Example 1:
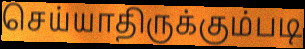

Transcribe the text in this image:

செய்யாதிருக்கும்படி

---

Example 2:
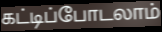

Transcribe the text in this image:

கட்டிப்போடலாம்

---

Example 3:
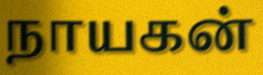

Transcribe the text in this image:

நாயகன்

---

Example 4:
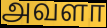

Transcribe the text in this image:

அவளா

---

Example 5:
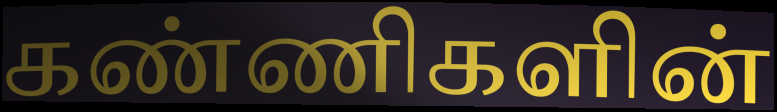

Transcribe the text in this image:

கண்ணிகளின்